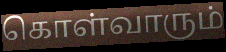
கொள்வாரும்